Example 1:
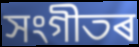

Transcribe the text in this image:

সংগীতৰ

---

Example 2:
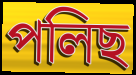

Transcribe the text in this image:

পলিছ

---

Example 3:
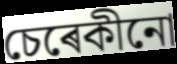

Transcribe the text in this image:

চেৰেকীনো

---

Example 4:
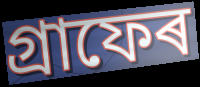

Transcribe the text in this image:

গ্ৰাফেৰ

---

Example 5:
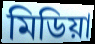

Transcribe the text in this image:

মিডিয়া